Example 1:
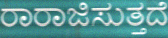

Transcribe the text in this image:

ರಾರಾಜಿಸುತ್ತದೆ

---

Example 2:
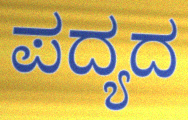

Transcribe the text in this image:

ಪದ್ಯದ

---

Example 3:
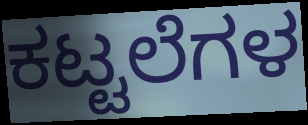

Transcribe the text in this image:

ಕಟ್ಟಲೆಗಳ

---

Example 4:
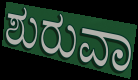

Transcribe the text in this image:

ಶುರುವಾ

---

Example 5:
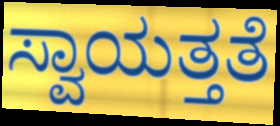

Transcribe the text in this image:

ಸ್ವಾಯತ್ತತೆ